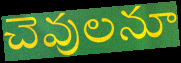
చెవులనూ